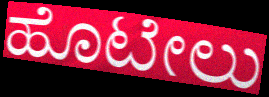
ಹೊಟೇಲು